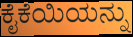
ಕೈಕೆಯಿಯನ್ನು